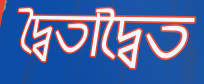
দ্বৈতাদ্বৈত